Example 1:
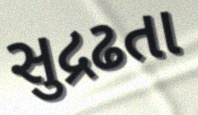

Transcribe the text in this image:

સુદ્રઢતા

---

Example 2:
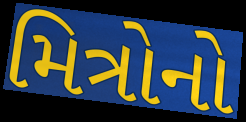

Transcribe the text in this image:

મિત્રોનો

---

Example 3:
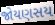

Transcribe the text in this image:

જોયણસય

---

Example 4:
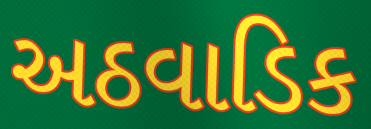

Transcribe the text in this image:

અઠવાડિક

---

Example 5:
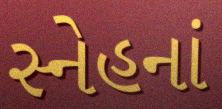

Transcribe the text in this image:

સ્નેહનાં